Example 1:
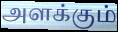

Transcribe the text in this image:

அளக்கும்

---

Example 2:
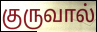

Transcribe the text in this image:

குருவால்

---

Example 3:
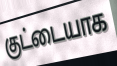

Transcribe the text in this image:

குட்டையாக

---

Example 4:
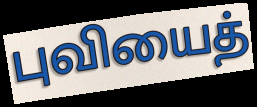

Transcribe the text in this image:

புவியைத்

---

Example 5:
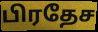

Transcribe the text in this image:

பிரதேச